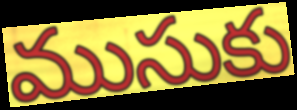
ముసుకు